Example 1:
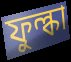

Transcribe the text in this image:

ফুল্কা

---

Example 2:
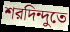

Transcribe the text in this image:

শরদিন্দুতে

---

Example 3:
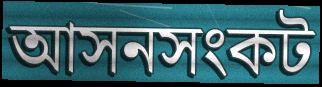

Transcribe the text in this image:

আসনসংকট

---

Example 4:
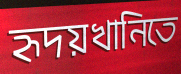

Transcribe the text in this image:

হৃদয়খানিতে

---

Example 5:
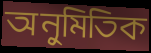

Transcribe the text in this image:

অনুমিতিক